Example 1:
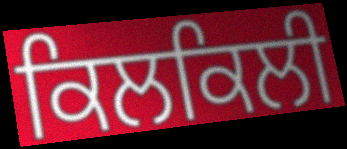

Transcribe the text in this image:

ਕਿਲਕਿਲੀ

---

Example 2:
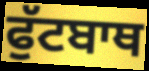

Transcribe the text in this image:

ਫੁੱਟਬਾਥ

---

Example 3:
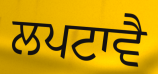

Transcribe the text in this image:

ਲਪਟਾਵੈ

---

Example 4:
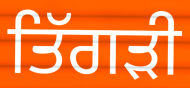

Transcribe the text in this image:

ਤਿੱਗੜੀ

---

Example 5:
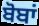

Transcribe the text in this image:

ਬੋਬਾਂ